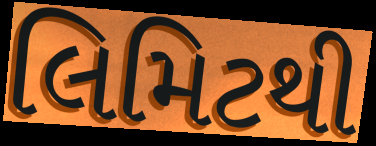
લિમિટથી